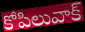
కోపిలువాక్